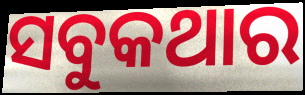
ସବୁକଥାର